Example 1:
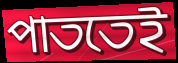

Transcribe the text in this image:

পাততেই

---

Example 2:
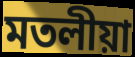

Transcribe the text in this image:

মতলীয়া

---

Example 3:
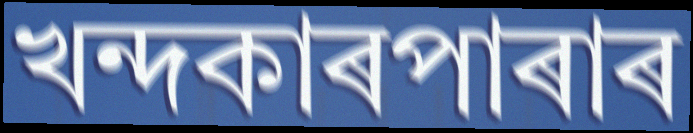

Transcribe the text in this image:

খন্দকাৰপাৰাৰ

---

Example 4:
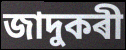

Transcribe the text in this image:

জাদুকৰী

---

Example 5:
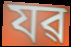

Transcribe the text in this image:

যৱ